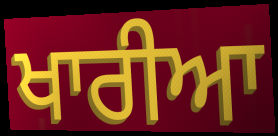
ਖਾਰੀਆ